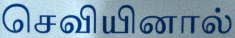
செவியினால்